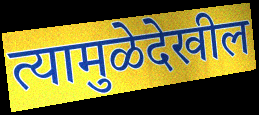
त्यामुळेदेखील